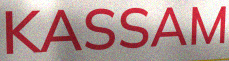
KASSAM